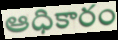
ఆధికారం